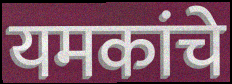
यमकांचे